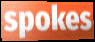
spokes